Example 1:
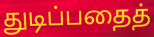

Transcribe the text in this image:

துடிப்பதைத்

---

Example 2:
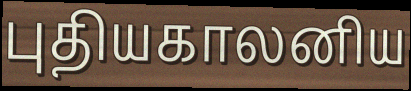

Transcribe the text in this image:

புதியகாலனிய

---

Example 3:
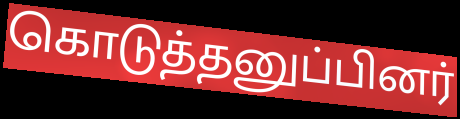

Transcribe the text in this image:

கொடுத்தனுப்பினர்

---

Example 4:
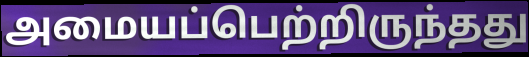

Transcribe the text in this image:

அமையப்பெற்றிருந்தது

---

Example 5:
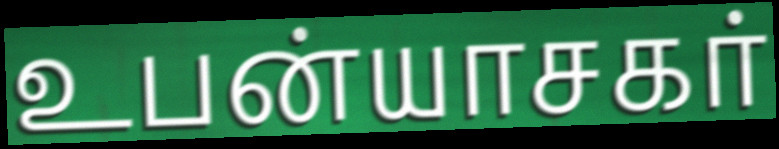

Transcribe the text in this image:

உபன்யாசகர்